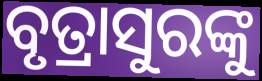
ବୃତ୍ରାସୁରଙ୍କୁ